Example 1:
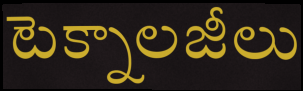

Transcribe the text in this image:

టెక్నాలజీలు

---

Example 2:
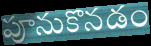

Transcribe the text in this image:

పూనుకొనడం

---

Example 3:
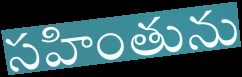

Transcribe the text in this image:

సహింతును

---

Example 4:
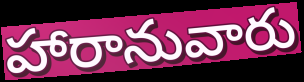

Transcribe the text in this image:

హారానువారు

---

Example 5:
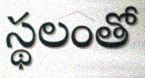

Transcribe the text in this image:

స్థలంతో